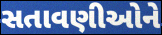
સતાવણીઓને